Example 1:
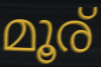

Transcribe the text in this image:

മൂര്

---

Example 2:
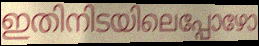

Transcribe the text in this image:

ഇതിനിടയിലെപ്പോഴോ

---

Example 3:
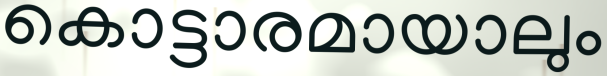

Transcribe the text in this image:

കൊട്ടാരമായാലും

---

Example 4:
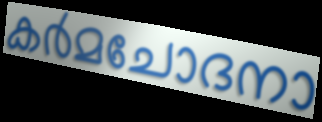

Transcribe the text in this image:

കർമചോദനാ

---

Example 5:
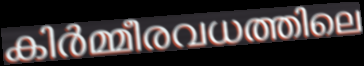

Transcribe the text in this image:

കിർമ്മീരവധത്തിലെ